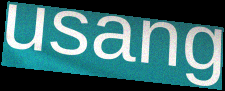
usang